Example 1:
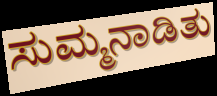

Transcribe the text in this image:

ಸುಮ್ಮನಾಡಿತು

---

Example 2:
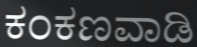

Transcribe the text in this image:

ಕಂಕಣವಾಡಿ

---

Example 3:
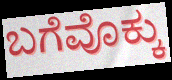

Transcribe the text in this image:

ಬಗೆವೊಕ್ಕು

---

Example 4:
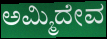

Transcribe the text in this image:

ಅಮ್ಮಿದೇವ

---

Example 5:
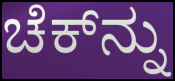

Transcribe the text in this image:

ಚೆಕ್‌ನ್ನು